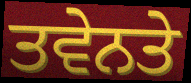
ਤਵੇਨਤੇ